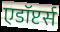
एडॉप्टर्स